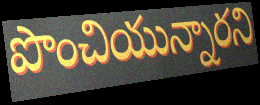
పొంచియున్నారని